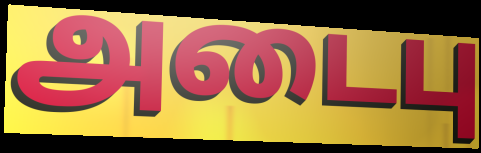
அடைபு